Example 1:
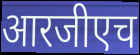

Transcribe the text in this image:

आरजीएच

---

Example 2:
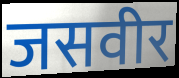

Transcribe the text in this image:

जसवीर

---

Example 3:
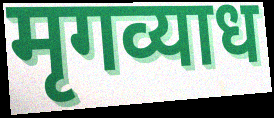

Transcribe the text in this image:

मृगव्याध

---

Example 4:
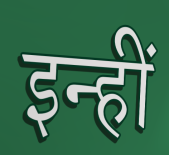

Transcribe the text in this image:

इन्हीं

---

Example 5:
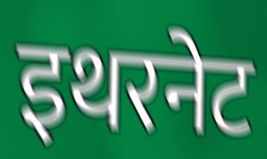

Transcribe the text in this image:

इथरनेट